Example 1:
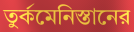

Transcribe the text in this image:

তুর্কমেনিস্তানের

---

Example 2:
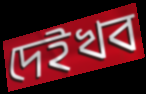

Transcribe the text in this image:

দেইখব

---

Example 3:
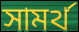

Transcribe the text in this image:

সামর্থ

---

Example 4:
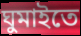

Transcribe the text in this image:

ঘুমাইতে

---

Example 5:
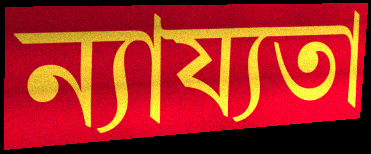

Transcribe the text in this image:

ন্যায্যতা